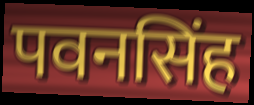
पवनसिंह